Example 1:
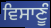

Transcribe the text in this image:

ਵਿਸਾਣੂੰ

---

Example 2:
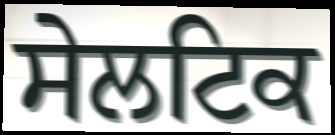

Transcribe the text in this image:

ਸੇਲਟਿਕ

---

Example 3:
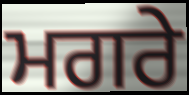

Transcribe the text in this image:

ਮਗਰੇ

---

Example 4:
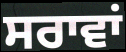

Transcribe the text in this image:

ਸਰਾਵਾਂ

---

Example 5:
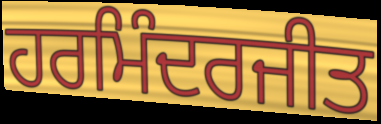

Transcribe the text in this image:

ਹਰਮਿੰਦਰਜੀਤ